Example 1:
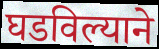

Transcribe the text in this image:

घडविल्याने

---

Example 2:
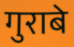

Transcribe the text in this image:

गुराबे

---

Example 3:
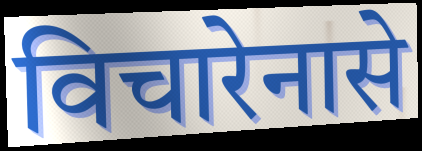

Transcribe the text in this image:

विचारेनासे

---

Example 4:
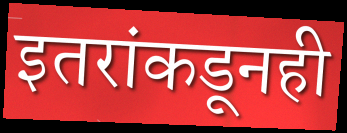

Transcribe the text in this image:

इतरांकडूनही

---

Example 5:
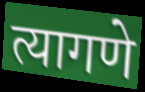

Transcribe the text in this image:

त्यागणे